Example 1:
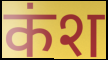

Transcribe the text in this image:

कंश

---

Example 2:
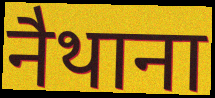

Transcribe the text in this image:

नैथाना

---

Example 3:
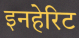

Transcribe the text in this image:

इनहेरिट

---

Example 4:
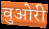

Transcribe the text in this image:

वुओरी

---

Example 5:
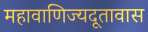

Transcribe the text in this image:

महावाणिज्यदूतावास